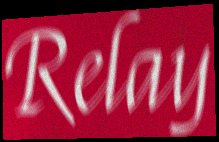
Relay